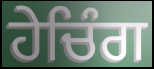
ਹੇਚਿੰਗ